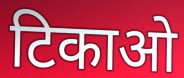
टिकाओ